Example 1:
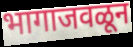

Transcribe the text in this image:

भागाजवळून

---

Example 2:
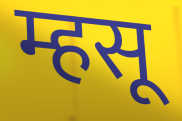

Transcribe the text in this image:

म्हसू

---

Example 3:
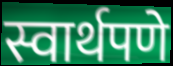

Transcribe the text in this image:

स्वार्थपणे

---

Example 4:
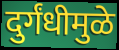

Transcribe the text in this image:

दुर्गंधीमुळे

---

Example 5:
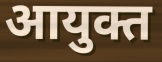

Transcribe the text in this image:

आयुक्त